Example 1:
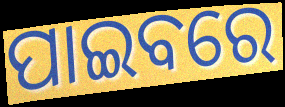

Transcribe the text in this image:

ପାଇବରେ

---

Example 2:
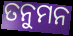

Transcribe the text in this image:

ତନୁମନ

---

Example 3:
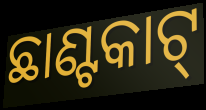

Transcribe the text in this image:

ଛାଣ୍ଟକାଟ୍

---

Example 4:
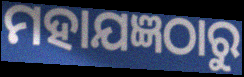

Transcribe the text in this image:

ମହାଯଜ୍ଞଠାରୁ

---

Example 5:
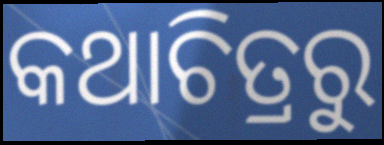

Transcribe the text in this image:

କଥାଚିତ୍ରରୁ